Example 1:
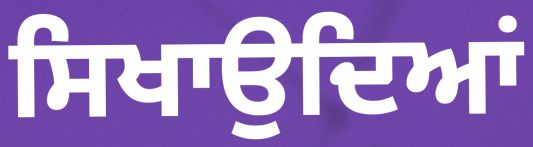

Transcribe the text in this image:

ਸਿਖਾਉਦਿਆਂ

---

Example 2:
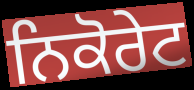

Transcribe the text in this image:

ਨਿਕੋਰੇਟ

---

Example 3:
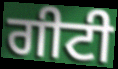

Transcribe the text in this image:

ਗੀਟੀ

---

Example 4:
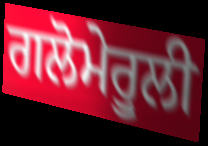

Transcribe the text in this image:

ਗਲੋਮੇਰੂਲੀ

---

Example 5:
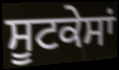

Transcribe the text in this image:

ਸੂਟਕੇਸਾਂ